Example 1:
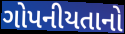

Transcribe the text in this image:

ગોપનીયતાનો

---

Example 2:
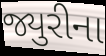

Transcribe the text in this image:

જ્યુરીના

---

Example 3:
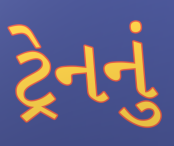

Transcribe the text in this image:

ટ્રેનનું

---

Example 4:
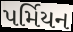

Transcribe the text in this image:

પર્મિયન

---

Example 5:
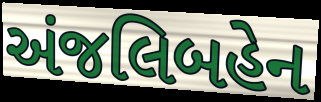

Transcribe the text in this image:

અંજલિબહેન